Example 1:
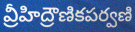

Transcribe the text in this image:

వ్రీహిద్రౌణికపర్వణి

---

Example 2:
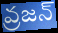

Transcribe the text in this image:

వ్రజన్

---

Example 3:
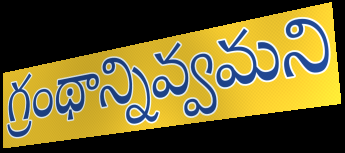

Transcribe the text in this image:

గ్రంథాన్నివ్వమని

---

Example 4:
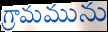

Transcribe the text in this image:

గ్రామమును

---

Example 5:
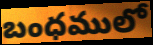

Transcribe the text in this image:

బంధములో